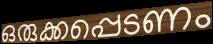
ഒരുക്കപ്പെടണം